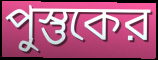
পুস্তুকের